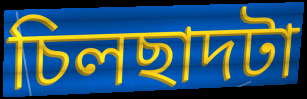
চিলছাদটা